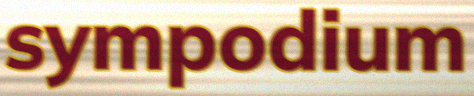
sympodium